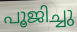
പൂജിച്ചു